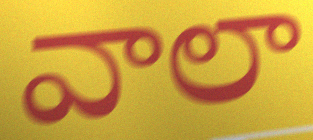
వాలా